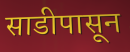
साडीपासून